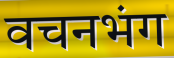
वचनभंग